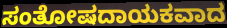
ಸಂತೋಷದಾಯಕವಾದ